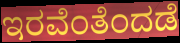
ಇರವೆಂತೆಂದಡೆ